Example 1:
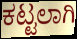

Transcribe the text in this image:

ಕಟ್ಟಲಾಗಿ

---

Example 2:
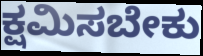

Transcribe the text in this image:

ಕ್ಷಮಿಸಬೇಕು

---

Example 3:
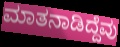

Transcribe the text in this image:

ಮಾತನಾಡಿದ್ದೆವು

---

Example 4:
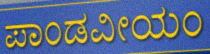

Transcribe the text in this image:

ಪಾಂಡವೀಯಂ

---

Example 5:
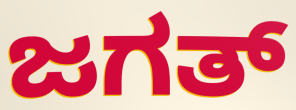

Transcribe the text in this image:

ಜಗತ್